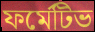
ফর্মেটিভ